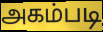
அகம்படி